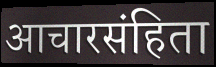
आचारसंहिता